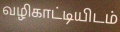
வழிகாட்டியிடம்